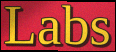
Labs